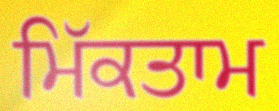
ਮਿੱਕਤਾਮ